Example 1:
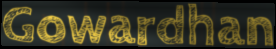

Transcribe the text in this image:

Gowardhan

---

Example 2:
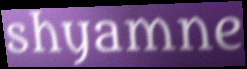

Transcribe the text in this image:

shyamne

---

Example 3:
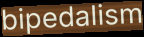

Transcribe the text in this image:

bipedalism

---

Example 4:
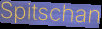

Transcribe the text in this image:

Spitschan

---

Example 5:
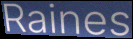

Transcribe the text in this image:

Raines